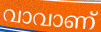
വാവാണ്